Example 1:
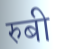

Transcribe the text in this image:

रुबी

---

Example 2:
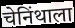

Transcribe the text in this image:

चेनिंथाला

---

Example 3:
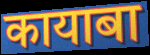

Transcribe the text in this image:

कायाबा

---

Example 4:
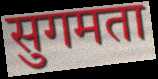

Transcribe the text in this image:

सुगमता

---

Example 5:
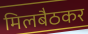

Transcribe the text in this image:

मिलबैठकर